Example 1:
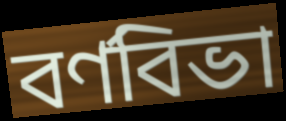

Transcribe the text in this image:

বর্ণবিভা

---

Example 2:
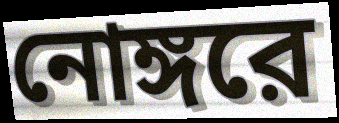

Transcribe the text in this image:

নোঙ্গরে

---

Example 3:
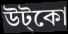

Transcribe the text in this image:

উট্কো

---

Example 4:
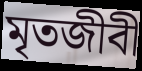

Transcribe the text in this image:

মৃতজীবী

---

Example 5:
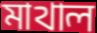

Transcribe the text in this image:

মাথাল